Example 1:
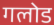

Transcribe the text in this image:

गलोड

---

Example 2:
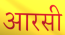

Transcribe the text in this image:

आरसी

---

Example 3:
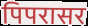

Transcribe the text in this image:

पिपरासर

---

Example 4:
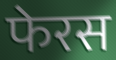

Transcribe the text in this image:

फेरस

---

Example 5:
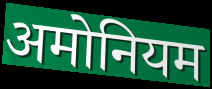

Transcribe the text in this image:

अमोनियम